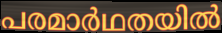
പരമാർഥതയിൽ